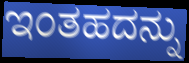
ಇಂತಹದನ್ನು